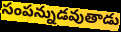
సంపన్నుడవుతాడు